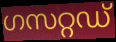
ഗസറ്റഡ്